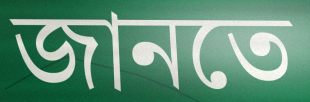
জানতে